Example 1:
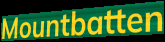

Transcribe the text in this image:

Mountbatten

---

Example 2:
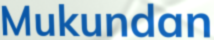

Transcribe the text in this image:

Mukundan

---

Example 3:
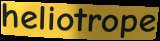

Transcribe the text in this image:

heliotrope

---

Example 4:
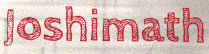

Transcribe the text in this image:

Joshimath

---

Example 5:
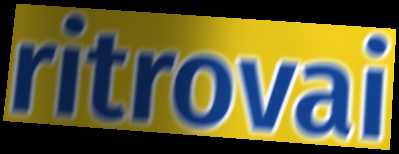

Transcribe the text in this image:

ritrovai